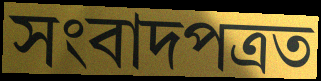
সংবাদপত্ৰত